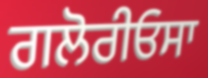
ਗਲੋਰੀਓਸਾ